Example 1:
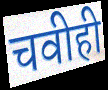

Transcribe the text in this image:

चवीही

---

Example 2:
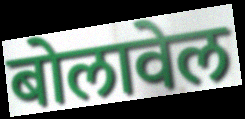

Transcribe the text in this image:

बोलावेल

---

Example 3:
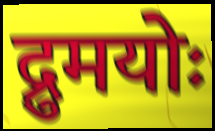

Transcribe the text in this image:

द्रुमयोः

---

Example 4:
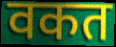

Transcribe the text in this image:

वकत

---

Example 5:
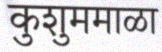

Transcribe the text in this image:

कुशुममाळा